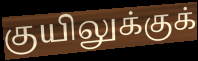
குயிலுக்குக்